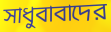
সাধুবাবাদের